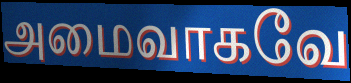
அமைவாகவே